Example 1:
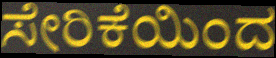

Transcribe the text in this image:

ಸೇರಿಕೆಯಿಂದ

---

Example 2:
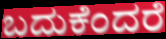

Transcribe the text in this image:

ಬದುಕೆಂದರೆ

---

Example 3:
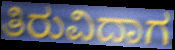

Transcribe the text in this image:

ತಿರುವಿದಾಗ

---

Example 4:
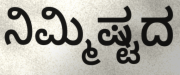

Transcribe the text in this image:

ನಿಮ್ಮಿಷ್ಟದ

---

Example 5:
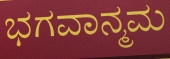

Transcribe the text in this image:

ಭಗವಾನ್ಮಮ